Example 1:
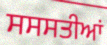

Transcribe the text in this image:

ਸਸਸਤੀਆਂ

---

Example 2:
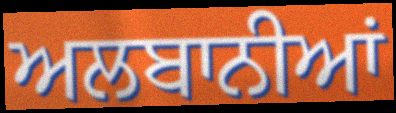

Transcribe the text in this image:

ਅਲਬਾਨੀਆਂ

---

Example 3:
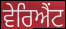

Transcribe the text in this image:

ਵੇਰਿਐਂਟ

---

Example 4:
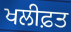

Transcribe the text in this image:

ਖਲੀਫ਼ਤ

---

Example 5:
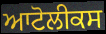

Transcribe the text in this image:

ਆਟੋਲੀਕਸ